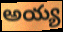
అయ్య